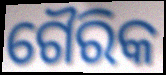
ଗୈରିକ